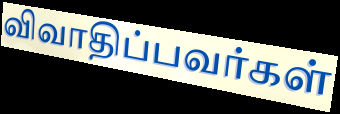
விவாதிப்பவர்கள்